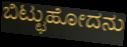
ಬಿಟ್ಟುಹೋದನು